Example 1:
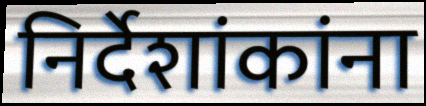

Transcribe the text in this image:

निर्देशांकांना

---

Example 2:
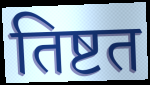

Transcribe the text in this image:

तिष्टत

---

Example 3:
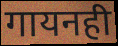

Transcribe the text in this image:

गायनही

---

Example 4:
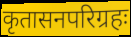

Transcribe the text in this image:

कृतासनपरिग्रहः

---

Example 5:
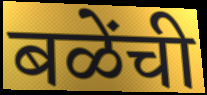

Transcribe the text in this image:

बळेंची